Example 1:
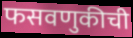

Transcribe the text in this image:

फसवणुकीची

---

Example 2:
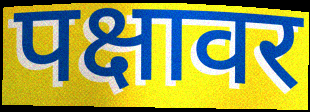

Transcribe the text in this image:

पक्षावर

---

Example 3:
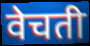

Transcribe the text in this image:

वेचती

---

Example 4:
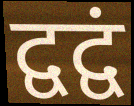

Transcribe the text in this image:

द्वद्वं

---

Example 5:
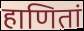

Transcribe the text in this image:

हाणितां